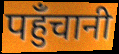
पहुँचानी